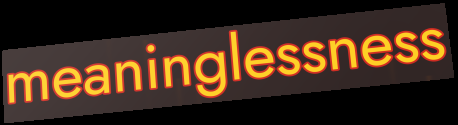
meaninglessness